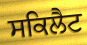
ਸਕਿਲੈਟ